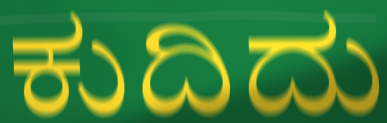
ಕುದಿದು